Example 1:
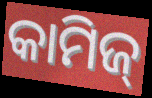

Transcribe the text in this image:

କାମିଜ୍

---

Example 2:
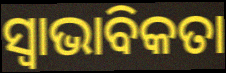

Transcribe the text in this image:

ସ୍ବାଭାବିକତା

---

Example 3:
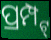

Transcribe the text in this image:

ପ୍ରମ୍ପ୍ଟ୍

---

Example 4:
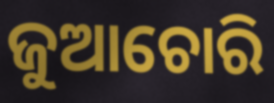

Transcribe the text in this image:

ଜୁଆଚୋରି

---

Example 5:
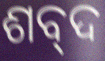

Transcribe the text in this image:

ଶବ୍‍ଦ